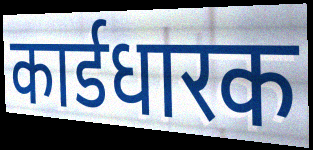
कार्डधारक